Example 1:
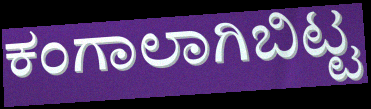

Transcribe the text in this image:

ಕಂಗಾಲಾಗಿಬಿಟ್ಟ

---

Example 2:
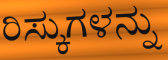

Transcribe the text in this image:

ರಿಸ್ಕುಗಳನ್ನು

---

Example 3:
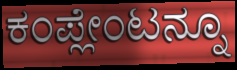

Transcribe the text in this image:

ಕಂಪ್ಲೇಂಟನ್ನೂ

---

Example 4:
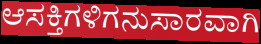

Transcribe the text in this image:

ಆಸಕ್ತಿಗಳಿಗನುಸಾರವಾಗಿ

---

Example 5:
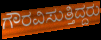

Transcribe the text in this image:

ಗೌರವಿಸುತ್ತಿದ್ದರು